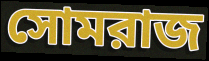
সোমরাজ